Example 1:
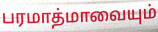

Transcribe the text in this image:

பரமாத்மாவையும்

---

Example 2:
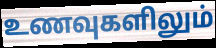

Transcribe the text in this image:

உணவுகளிலும்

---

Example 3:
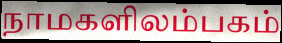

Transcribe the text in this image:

நாமகளிலம்பகம்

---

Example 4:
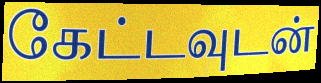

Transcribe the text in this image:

கேட்டவுடன்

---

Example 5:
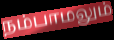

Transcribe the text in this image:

நம்பாமலும்